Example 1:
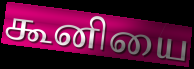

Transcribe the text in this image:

கூனியை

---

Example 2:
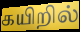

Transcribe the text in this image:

கயிறில்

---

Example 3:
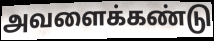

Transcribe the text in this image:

அவளைக்கண்டு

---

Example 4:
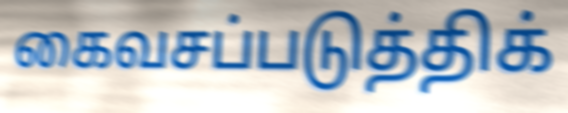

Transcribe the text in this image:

கைவசப்படுத்திக்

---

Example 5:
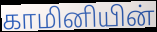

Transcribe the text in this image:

காமினியின்